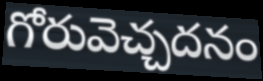
గోరువెచ్చదనం